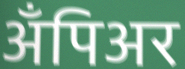
अँपिअर